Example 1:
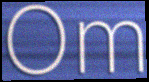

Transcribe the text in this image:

Om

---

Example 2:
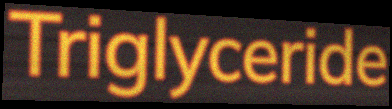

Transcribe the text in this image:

Triglyceride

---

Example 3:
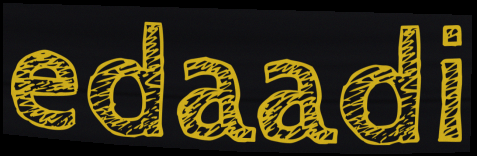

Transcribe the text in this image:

edaadi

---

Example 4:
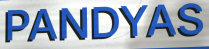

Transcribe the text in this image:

PANDYAS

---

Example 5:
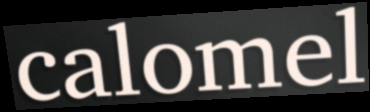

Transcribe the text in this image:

calomel